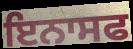
ਇਨਾਸਫ